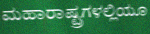
ಮಹಾರಾಷ್ಟ್ರಗಳಲ್ಲಿಯೂ